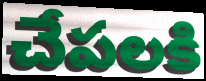
చేపలకి